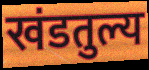
खंडतुल्य